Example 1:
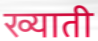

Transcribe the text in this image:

ख्याती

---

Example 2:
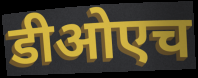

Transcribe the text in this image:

डीओएच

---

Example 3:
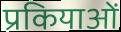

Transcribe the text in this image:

प्रकियाओं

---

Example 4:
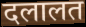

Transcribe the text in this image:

दलालत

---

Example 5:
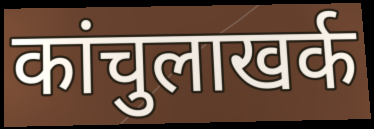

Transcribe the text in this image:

कांचुलाखर्क